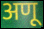
अणू